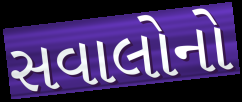
સવાલોનો